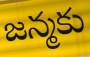
జన్మకు